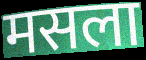
मसला